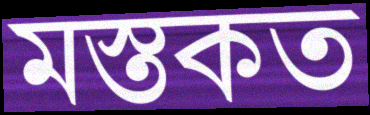
মস্তকত